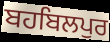
ਬਹਬਿਲਪੁਰ